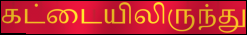
கட்டையிலிருந்து